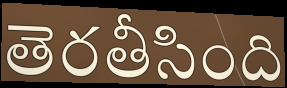
తెరతీసింది